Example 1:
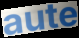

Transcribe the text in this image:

aute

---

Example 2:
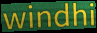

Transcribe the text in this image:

windhi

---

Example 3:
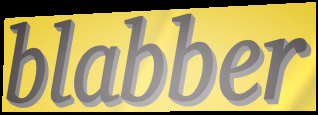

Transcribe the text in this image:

blabber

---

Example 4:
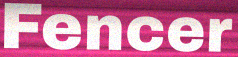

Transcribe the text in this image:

Fencer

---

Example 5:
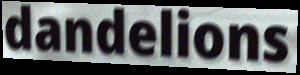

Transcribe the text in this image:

dandelions